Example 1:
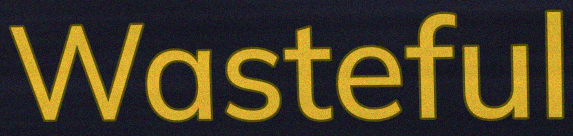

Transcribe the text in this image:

Wasteful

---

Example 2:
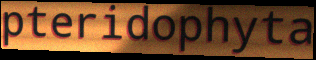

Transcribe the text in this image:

pteridophyta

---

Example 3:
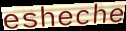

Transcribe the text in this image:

esheche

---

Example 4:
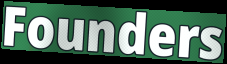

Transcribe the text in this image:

Founders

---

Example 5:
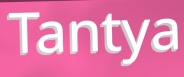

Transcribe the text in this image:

Tantya